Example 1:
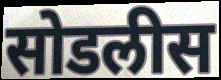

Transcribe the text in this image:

सोडलीस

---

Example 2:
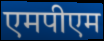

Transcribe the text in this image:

एमपीएम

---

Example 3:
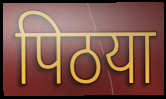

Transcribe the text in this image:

पिठया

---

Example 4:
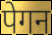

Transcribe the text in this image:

पेगन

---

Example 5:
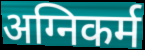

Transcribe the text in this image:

अग्निकर्म